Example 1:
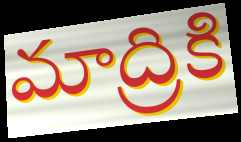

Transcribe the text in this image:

మాద్రికి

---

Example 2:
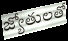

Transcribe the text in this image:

జ్యోతులతో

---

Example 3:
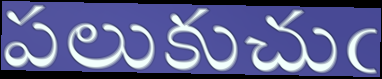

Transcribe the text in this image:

పలుకుచుఁ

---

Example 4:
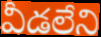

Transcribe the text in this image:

వీడలేని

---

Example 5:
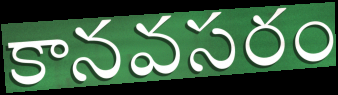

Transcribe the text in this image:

కానవసరం